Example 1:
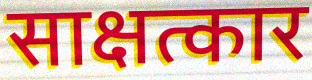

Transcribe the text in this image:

साक्षत्कार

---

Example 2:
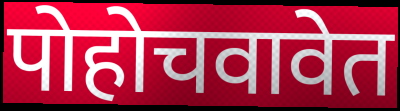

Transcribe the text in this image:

पोहोचवावेत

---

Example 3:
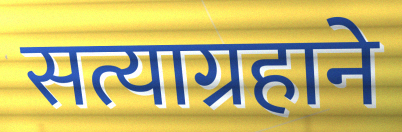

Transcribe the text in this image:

सत्याग्रहाने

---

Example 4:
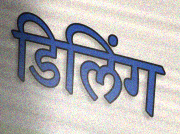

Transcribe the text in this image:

डिलिंग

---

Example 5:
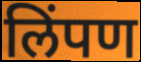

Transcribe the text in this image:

लिंपण